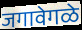
जगावेगळे